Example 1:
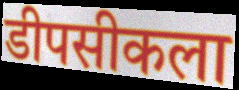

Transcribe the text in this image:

डीपसीकला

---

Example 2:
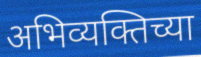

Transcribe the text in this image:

अभिव्यक्तिच्या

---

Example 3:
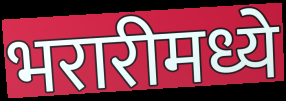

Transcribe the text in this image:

भरारीमध्ये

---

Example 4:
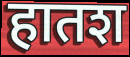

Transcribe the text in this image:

हातश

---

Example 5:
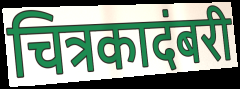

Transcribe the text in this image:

चित्रकादंबरी